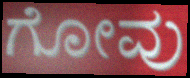
ಗೋವು